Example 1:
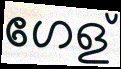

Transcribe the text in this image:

ഗേള്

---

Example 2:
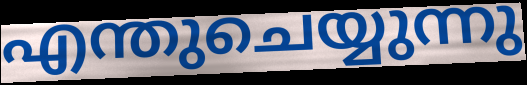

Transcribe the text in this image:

എന്തുചെയ്യുന്നു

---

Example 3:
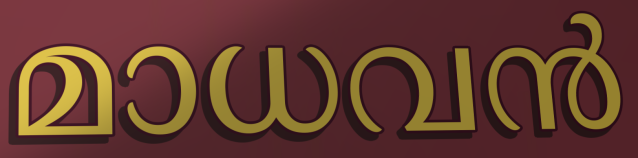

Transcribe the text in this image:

മാധവൻ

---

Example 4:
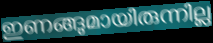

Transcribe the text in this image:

ഇണങ്ങുമായിരുന്നില്ല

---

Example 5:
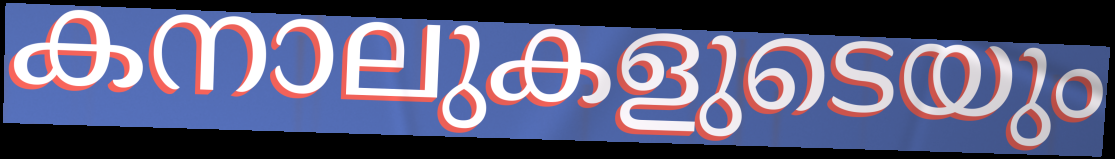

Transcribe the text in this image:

കനാലുകളുടെയും